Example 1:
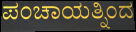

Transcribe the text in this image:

ಪಂಚಾಯತ್ನಿಂದ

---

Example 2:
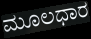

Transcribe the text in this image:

ಮೂಲಧಾರ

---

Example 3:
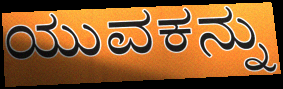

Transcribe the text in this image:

ಯುವಕನ್ನು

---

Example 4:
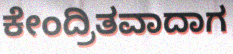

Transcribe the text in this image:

ಕೇಂದ್ರಿತವಾದಾಗ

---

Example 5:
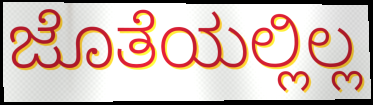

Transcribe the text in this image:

ಜೊತೆಯಲ್ಲಿಲ್ಲ